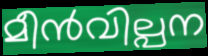
മീൻവില്പന